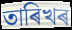
তাৰিখৰ